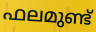
ഫലമുണ്ട്